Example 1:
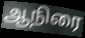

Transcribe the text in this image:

ஆநிரை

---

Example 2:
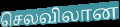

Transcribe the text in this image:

செலவிலான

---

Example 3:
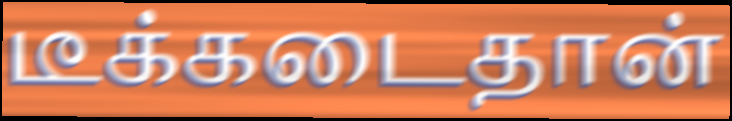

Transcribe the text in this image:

டீக்கடைதான்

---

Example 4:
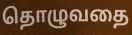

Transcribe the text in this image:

தொழுவதை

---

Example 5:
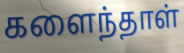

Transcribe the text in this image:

களைந்தாள்